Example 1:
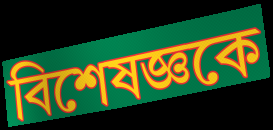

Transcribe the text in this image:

বিশেষজ্ঞকে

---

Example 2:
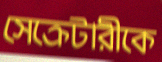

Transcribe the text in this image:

সেক্রেটারীকে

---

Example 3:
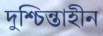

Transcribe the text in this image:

দুশ্চিন্তাহীন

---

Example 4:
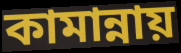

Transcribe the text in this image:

কামান্নায়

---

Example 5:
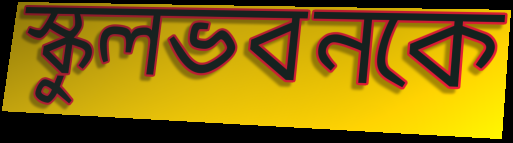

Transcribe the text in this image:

স্কুলভবনকে